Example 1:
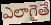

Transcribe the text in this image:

ఎలాగైతే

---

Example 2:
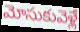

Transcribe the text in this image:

మోసుకువెళ్లే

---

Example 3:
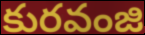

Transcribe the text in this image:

కురవంజి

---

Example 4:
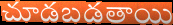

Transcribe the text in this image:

చూడబడతాయి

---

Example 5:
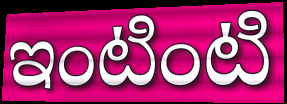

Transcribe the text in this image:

ఇంటింటి